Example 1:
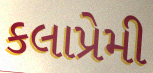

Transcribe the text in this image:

કલાપ્રેમી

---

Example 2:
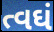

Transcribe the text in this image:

ત્વઘં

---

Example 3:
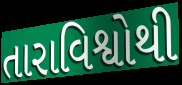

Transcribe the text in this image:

તારાવિશ્વોથી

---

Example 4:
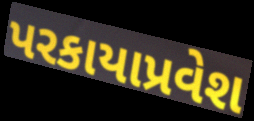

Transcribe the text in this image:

પરકાયાપ્રવેશ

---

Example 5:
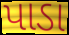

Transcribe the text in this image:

પાડા